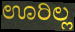
ಊರಿಲ್ಲ